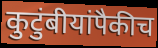
कुटुंबीयांपैकीच